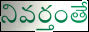
నివర్తంతే